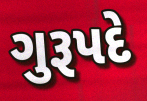
ગુરૂપદે